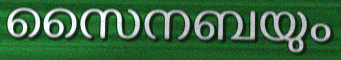
സൈനബയും